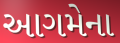
આગમેના